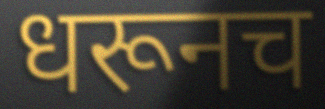
धरूनच